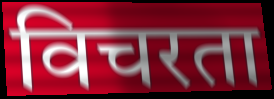
विचरता